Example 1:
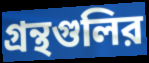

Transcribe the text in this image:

গ্রন্থগুলির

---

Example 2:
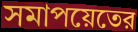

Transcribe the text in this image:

সমাপয়েতের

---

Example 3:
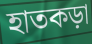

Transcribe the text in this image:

হাতকড়া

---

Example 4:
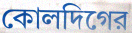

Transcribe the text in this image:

কোলদিগের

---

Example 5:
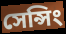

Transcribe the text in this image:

সেন্সিং